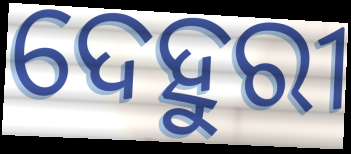
ଦେହୁରୀ